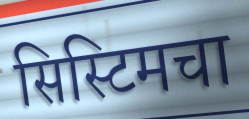
सिस्टिमचा